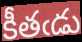
కీతఁడు